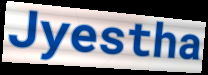
Jyestha